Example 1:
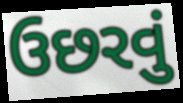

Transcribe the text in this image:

ઉછરવું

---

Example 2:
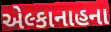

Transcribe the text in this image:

એલ્કાનાહના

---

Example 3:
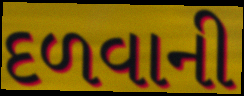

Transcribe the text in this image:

દળવાની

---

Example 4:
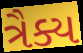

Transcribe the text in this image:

ત્રૈક્ય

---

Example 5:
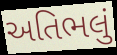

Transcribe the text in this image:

અતિભલું